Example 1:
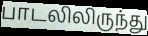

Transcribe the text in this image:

பாடலிலிருந்து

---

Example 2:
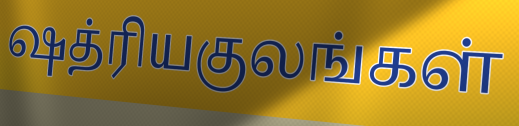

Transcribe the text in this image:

ஷத்ரியகுலங்கள்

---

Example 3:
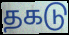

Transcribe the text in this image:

தகடு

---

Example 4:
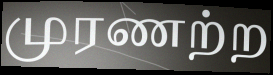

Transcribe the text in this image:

முரணற்ற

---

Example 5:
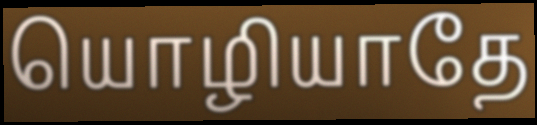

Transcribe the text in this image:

யொழியாதே